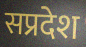
सप्रदेश